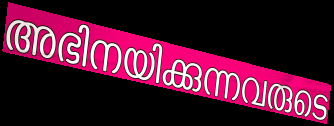
അഭിനയിക്കുന്നവരുടെ